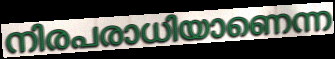
നിരപരാധിയാണെന്ന